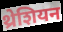
थ्रेशियन